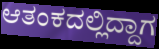
ಆತಂಕದಲ್ಲಿದ್ದಾಗ